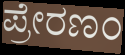
ಪ್ರೇರಣಂ